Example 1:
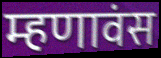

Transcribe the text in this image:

म्हणावंस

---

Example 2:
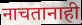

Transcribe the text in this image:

नाचतानाही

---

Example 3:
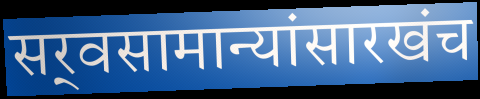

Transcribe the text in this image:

सर्वसामान्यांसारखंच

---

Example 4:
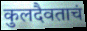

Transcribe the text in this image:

कुलदैवताचं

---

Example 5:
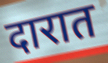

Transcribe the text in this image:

दारात